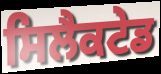
ਸਿਲੈਕਟੇਡ